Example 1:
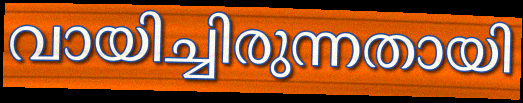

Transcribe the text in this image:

വായിച്ചിരുന്നതായി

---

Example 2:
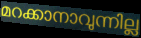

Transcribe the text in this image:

മറക്കാനാവുന്നില്ല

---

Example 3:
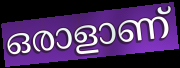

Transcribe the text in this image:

ഒരാളാണ്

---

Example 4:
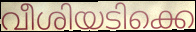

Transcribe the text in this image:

വീശിയടിക്കെ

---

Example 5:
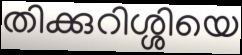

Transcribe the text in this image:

തിക്കുറിശ്ശിയെ